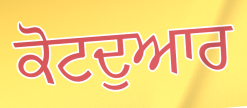
ਕੋਟਦੁਆਰ